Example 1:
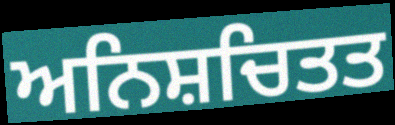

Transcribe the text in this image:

ਅਨਿਸ਼ਚਿਤਤ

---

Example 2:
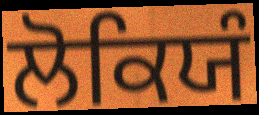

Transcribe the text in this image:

ਲੋਕਿਯੰ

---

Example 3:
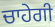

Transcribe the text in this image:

ਚਾਹੇਗੀ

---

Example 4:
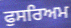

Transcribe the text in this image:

ਫੁਸਰਿਅਮ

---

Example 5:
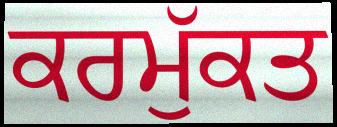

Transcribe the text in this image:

ਕਰਮੁੱਕਤ